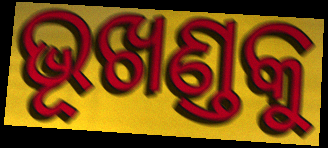
ଭୂଖଣ୍ଡକୁ